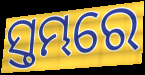
ସ୍ତମ୍ଭରେ